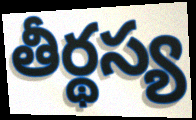
తీర్థస్య